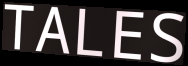
TALES